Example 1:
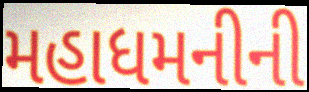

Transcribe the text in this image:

મહાધમનીની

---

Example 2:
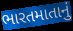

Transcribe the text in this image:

ભારતમાતાનું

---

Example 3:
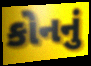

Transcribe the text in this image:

કોનનું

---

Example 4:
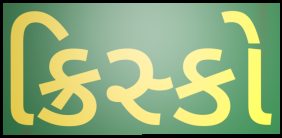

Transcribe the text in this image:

ક્રિસ્કો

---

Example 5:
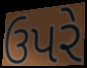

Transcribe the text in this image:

ઉપરે